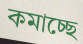
কমাচ্ছে